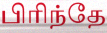
பிரிந்தே